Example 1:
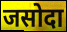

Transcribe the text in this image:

जसोदा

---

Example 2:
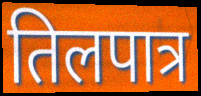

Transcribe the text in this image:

तिलपात्र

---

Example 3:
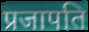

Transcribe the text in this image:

प्रजापति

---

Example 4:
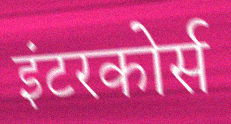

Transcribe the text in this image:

इंटरकोर्स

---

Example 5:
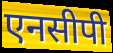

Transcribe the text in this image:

एनसीपी